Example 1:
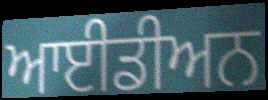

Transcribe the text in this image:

ਆਈਡੀਅਨ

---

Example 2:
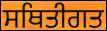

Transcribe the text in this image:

ਸਥਿਤੀਗਤ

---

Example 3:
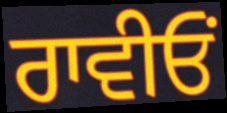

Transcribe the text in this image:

ਰਾਵੀਓਂ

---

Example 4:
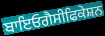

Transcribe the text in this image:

ਬਾਇਓਗੈਸੀਫਿਕੇਸ਼ਨ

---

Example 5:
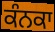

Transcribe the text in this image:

ਕੰਨਕਾ